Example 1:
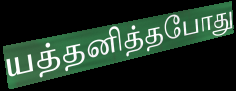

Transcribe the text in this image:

யத்தனித்தபோது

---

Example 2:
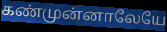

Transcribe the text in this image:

கண்முன்னாலேயே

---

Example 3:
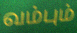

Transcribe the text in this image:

வம்பும்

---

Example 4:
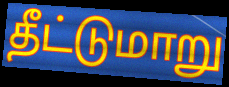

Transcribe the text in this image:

தீட்டுமாறு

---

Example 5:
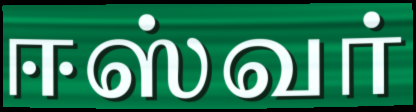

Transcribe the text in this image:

ஈஸ்வர்